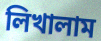
লিখালাম